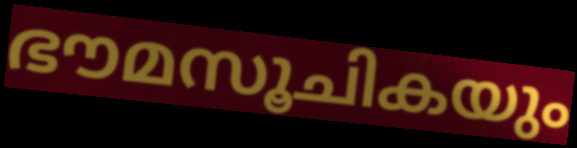
ഭൗമസൂചികയും